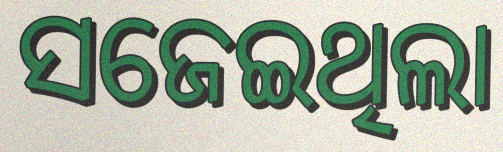
ସଜେଇଥିଲା